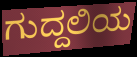
ಗುದ್ದಲಿಯ